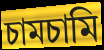
চামচামি